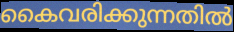
കൈവരിക്കുന്നതിൽ